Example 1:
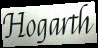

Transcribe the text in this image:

Hogarth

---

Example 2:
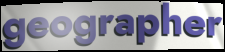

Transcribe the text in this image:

geographer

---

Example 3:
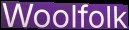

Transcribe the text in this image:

Woolfolk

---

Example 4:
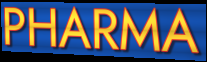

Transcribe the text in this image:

PHARMA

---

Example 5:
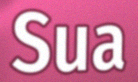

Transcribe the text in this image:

Sua